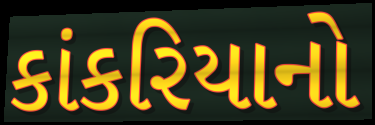
કાંકરિયાનો